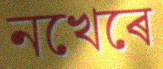
নখেৰে